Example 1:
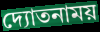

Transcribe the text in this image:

দ্যোতনাময়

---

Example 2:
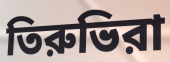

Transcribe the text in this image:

তিরুভিরা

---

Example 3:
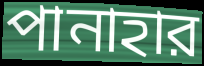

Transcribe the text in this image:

পানাহার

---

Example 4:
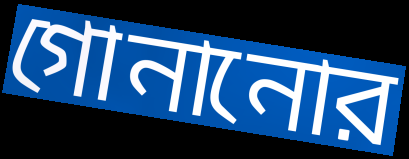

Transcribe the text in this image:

গোনানোর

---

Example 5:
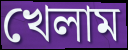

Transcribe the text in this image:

খেলাম